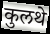
कुलथे